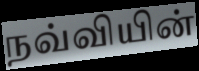
நவ்வியின்